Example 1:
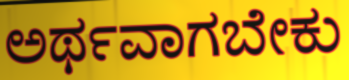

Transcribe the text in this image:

ಅರ್ಥವಾಗಬೇಕು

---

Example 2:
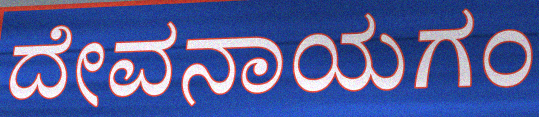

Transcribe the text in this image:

ದೇವನಾಯಗಂ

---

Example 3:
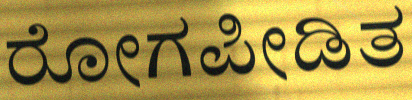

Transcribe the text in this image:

ರೋಗಪೀಡಿತ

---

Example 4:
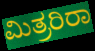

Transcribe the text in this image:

ಮಿತ್ರರಿರಾ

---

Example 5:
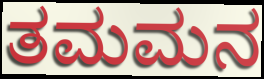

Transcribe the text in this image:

ತಮಮನ